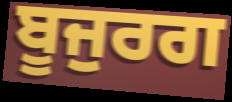
ਬੂਜੁਰਗ